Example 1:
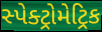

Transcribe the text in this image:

સ્પેક્ટ્રોમેટ્રિક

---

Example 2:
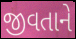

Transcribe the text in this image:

જીવતાને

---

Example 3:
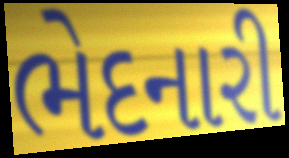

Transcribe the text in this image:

ભેદનારી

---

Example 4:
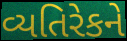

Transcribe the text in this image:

વ્યતિરેકને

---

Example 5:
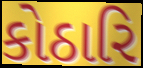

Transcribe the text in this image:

કોઠારિ